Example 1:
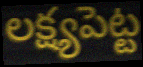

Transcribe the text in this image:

లక్ష్యపెట్ట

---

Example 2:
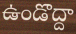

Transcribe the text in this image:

ఉండొద్దా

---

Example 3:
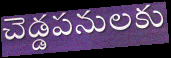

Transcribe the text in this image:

చెడ్డపనులకు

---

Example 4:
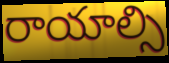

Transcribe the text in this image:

రాయాల్సి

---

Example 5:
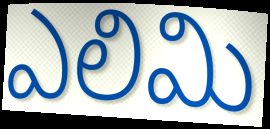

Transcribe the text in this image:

ఎలిమి